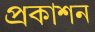
প্রকাশন